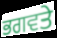
ਭਗਵਤੇ